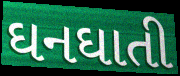
ઘનઘાતી